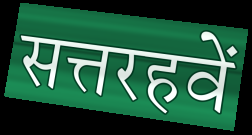
सत्तरहवें